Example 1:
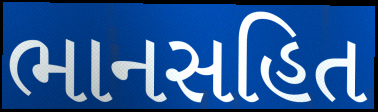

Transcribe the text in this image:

ભાનસહિત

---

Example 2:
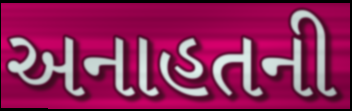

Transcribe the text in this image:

અનાહતની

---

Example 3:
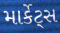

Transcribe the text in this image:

માર્કેટ્સ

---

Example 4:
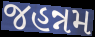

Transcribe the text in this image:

જહન્નમ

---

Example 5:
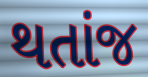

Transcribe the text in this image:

થતાંજ